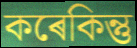
কৰেকিন্তু